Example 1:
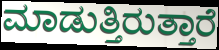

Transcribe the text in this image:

ಮಾಡುತ್ತಿರುತ್ತಾರೆ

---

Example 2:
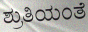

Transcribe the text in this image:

ಶ್ರುತಿಯಂತೆ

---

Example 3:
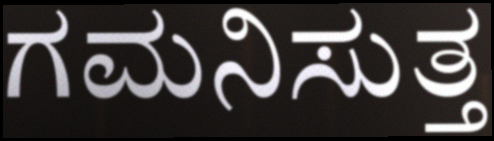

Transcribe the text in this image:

ಗಮನಿಸುತ್ತ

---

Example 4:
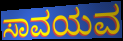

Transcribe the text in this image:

ಸಾವಯವ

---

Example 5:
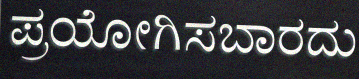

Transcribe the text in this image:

ಪ್ರಯೋಗಿಸಬಾರದು